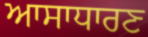
ਆਸਾਧਾਰਣ